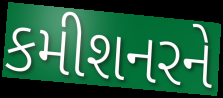
કમીશનરને